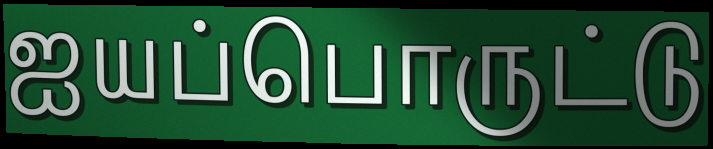
ஐயப்பொருட்டு